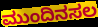
ಮುಂದಿನಸಲ